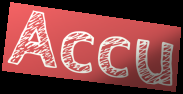
Accu